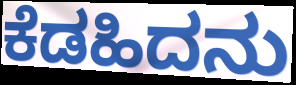
ಕೆಡಹಿದನು